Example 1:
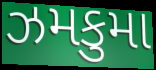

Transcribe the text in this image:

ઝમકુમા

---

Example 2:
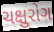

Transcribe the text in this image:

ચક્ષુરોગ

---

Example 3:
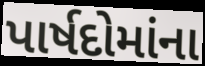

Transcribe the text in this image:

પાર્ષદોમાંના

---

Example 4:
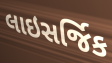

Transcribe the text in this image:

લાઇસર્જિક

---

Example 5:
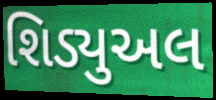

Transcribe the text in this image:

શિડ્યુઅલ